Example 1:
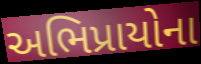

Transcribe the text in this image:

અભિપ્રાયોના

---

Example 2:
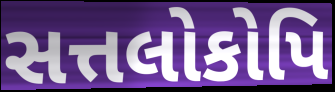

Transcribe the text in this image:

સત્તલોકોપિ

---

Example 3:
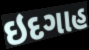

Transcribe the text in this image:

ઇદગાહ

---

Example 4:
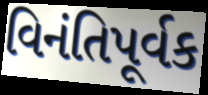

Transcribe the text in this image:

વિનંતિપૂર્વક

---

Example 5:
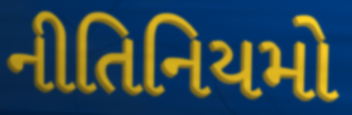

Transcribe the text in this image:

નીતિનિયમો